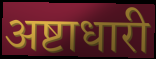
अष्टाधारी